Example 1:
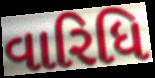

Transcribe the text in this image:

વારિધિ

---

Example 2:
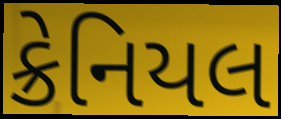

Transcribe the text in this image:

ક્રેનિયલ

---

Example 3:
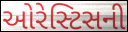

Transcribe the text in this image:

ઓરેસ્ટિસની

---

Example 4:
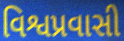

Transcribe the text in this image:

વિશ્વપ્રવાસી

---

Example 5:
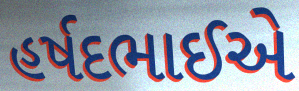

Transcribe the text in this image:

હર્ષદભાઈએ